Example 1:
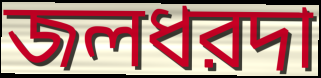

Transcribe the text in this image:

জলধরদা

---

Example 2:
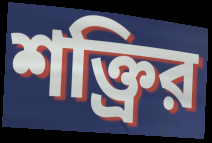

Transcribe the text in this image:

শক্ত্রির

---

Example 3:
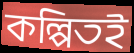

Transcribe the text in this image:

কল্পিতই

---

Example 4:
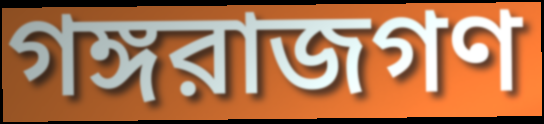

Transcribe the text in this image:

গঙ্গরাজগণ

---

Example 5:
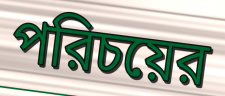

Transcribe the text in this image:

পরিচয়ের